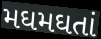
મઘમઘતાં